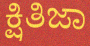
ಕ್ಷಿತಿಜಾ